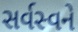
સર્વસ્વને